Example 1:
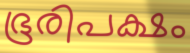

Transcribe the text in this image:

ഭൂരിപക്ഷം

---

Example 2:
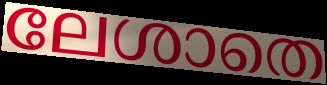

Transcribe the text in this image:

ലേശാതെ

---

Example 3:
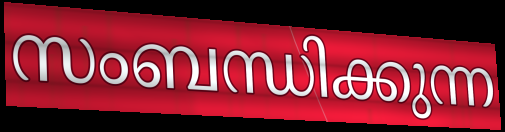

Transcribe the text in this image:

സംബന്ധിക്കുന്ന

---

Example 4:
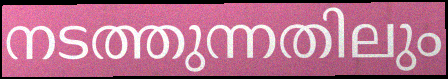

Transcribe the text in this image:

നടത്തുന്നതിലും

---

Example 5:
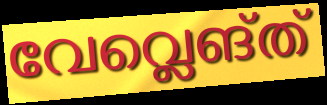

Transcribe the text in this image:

വേവ്ലെങ്ത്